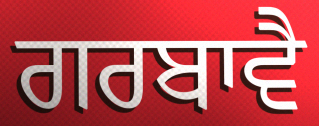
ਗਰਬਾਵੈ